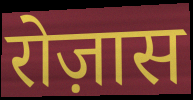
रोज़ास